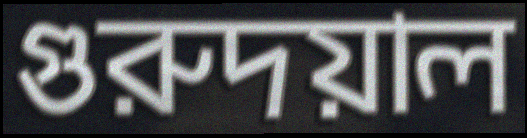
গুরুদয়াল